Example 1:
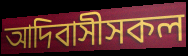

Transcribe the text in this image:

আদিবাসীসকল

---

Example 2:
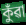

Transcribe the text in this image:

কুঁৱা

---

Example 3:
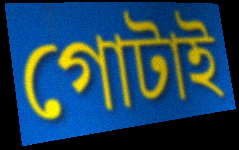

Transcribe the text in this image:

গোটাই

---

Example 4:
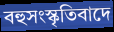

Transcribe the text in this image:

বহুসংস্কৃতিবাদে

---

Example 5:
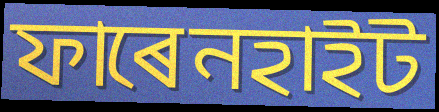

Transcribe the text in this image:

ফাৰেনহাইট